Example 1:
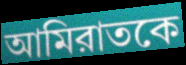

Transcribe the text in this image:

আমিরাতকে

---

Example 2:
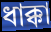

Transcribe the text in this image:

ধাক্কা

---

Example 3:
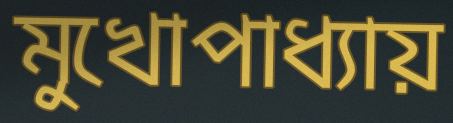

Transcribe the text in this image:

মুখোপাধ্যায়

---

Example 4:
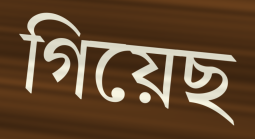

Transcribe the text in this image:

গিয়েছ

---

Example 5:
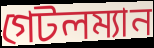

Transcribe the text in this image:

গেটলম্যান